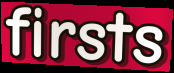
firsts